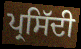
ਪ੍ਰਸਿੱਦੀ